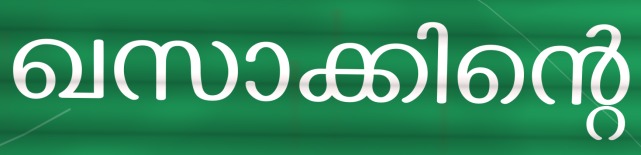
ഖസാക്കിന്റെ